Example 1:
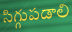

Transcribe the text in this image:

సిగ్గుపడాలి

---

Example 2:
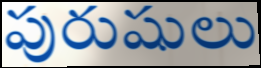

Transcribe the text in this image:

పురుషులు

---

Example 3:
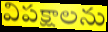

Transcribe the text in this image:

విపక్షాలను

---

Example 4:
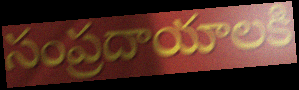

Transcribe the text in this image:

సంప్రదాయాలకి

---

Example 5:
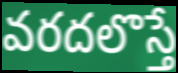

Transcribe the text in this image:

వరదలొస్తే